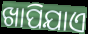
ଖାପିଯାଏ